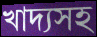
খাদ্যসহ